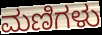
ಮಣಿಗಳು